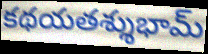
కథయతశ్శుభామ్